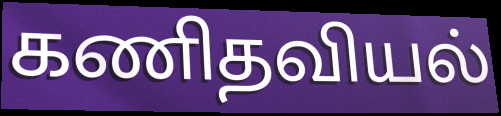
கணிதவியல்